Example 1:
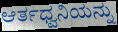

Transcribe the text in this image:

ಆರ್ತಧ್ವನಿಯನ್ನು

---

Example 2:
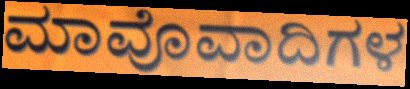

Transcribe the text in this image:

ಮಾವೊವಾದಿಗಳ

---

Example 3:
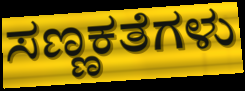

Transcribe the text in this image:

ಸಣ್ಣಕತೆಗಳು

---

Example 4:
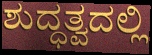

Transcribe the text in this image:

ಶುದ್ಧತ್ವದಲ್ಲಿ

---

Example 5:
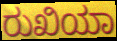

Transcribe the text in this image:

ರುಖಿಯಾ